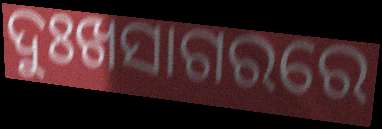
ଦୁଃଖସାଗରରେ